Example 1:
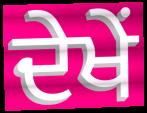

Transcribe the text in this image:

ਦੇਖੇਂ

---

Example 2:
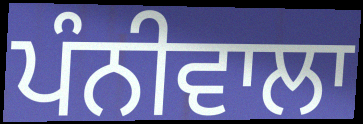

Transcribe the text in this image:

ਪੰਨੀਵਾਲਾ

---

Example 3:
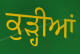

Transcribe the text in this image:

ਕੁੜ੍ਹੀਆਂ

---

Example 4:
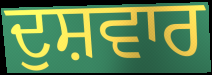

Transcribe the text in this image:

ਦੁਸ਼ਵਾਰ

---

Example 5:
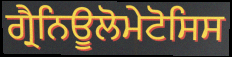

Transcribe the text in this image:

ਗ੍ਰੈਨਿਊਲੋਮੇਟੋਸਿਸ